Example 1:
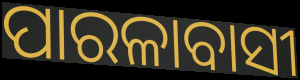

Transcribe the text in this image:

ପାରଳାବାସୀ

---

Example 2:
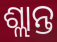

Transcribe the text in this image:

ଶ୍ଲାନ୍ତ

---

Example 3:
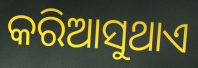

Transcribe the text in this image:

କରିଆସୁଥାଏ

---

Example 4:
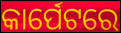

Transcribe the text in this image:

କାର୍ପେଟରେ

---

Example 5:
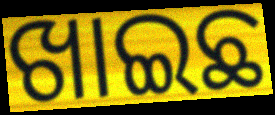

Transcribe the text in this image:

ଖାଇଛ